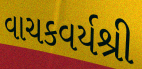
વાચકવર્યશ્રી